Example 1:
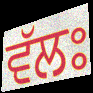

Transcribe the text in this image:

ਵੱਲਃ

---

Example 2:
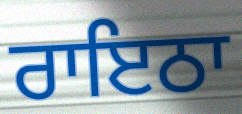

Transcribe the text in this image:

ਰਾਇਠਾ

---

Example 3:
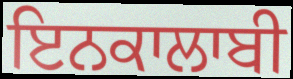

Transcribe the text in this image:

ਇਨਕਾਲਾਬੀ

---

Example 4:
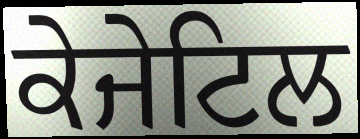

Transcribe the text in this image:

ਕੇਜੇਟਿਲ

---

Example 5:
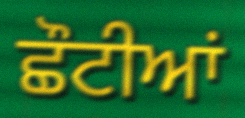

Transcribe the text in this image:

ਛੌਟੀਆਂ